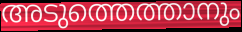
അടുത്തെത്താനും